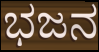
ಭಜನ